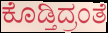
ಕೊಡ್ತಿದ್ರಂತೆ